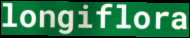
longiflora